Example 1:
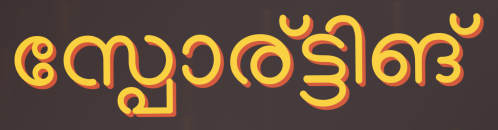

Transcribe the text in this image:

സ്പോര്ട്ടിങ്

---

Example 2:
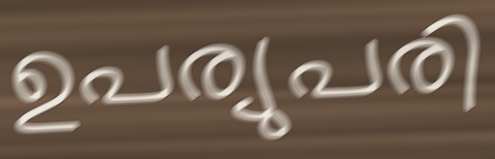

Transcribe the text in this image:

ഉപര്യുപരി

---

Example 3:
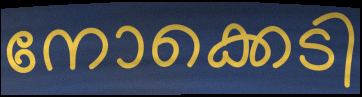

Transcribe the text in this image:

നോക്കെടി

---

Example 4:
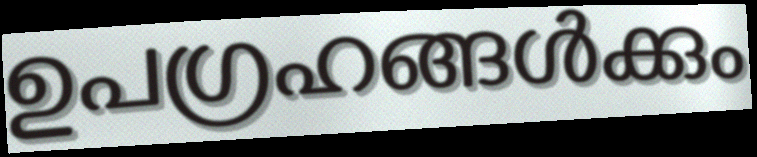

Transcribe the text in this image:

ഉപഗ്രഹങ്ങൾക്കും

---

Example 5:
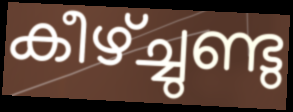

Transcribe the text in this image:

കീഴ്ച്ചുണ്ടു